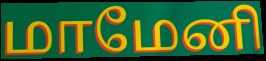
மாமேனி